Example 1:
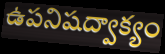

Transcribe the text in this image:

ఉపనిషద్వాక్యం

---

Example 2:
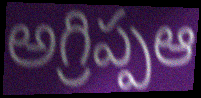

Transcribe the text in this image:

అగ్రిప్పఆ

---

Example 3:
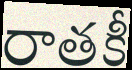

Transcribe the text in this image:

రాతకీ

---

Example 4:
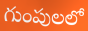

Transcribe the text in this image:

గుంపులలో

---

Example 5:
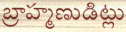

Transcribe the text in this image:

బ్రాహ్మణుడిట్లు